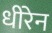
धीरेन